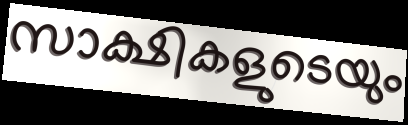
സാക്ഷികളുടെയും